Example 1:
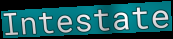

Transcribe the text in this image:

Intestate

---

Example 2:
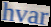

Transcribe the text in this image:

hvar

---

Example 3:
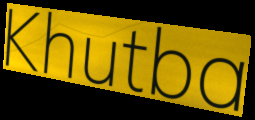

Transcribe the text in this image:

Khutba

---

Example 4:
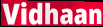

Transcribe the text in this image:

Vidhaan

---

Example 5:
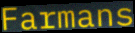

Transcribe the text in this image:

Farmans